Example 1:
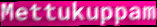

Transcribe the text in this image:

Mettukuppam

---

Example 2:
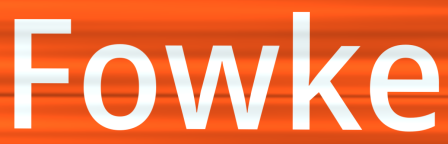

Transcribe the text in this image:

Fowke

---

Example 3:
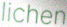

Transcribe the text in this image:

lichen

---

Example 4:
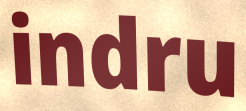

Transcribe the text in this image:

indru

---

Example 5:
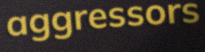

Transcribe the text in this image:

aggressors